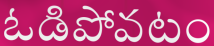
ఓడిపోవటం